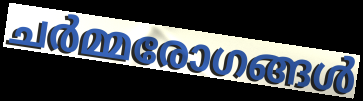
ചർമ്മരോഗങ്ങൾ